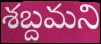
శబ్దమని